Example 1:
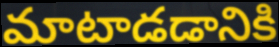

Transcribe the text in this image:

మాటాడడానికి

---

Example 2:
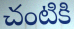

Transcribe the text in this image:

చంటికి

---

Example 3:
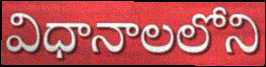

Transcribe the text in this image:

విధానాలలోని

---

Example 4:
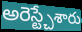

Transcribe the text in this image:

అరెస్ట్చేశారు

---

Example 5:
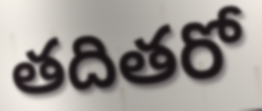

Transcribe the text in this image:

తదితరో